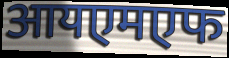
आयएमएफ